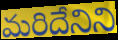
మరిదేనిని